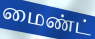
மைண்ட்